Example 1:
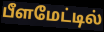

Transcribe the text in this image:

பீளமேட்டில்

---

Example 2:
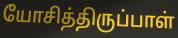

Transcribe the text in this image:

யோசித்திருப்பாள்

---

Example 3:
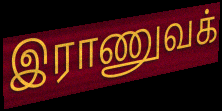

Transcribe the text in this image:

இராணுவக்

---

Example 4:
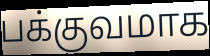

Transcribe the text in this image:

பக்குவமாக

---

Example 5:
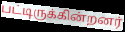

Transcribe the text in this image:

பட்டிருக்கின்றனர்